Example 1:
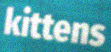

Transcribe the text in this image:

kittens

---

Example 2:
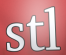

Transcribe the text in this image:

stl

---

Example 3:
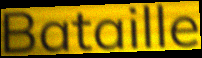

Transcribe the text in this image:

Bataille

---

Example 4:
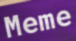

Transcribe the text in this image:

Meme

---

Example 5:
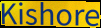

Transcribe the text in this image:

Kishore